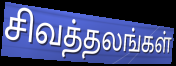
சிவத்தலங்கள்